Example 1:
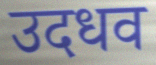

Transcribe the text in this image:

उदधव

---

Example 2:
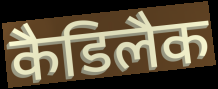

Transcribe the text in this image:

कैडिलैक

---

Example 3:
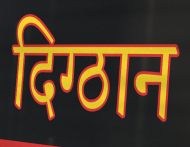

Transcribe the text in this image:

दिग्ठान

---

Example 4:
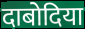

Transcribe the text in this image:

दाबोदिया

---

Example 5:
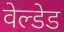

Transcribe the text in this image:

वेल्डेड